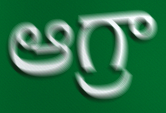
ఆగ్రా